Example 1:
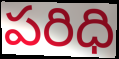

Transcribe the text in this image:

పరిధి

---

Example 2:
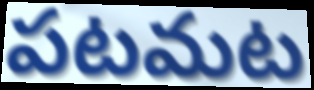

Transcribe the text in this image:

పటమట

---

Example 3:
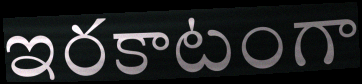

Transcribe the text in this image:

ఇరకాటంగా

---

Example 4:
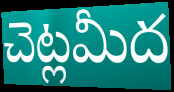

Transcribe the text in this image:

చెట్లమీద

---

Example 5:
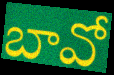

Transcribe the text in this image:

బావో